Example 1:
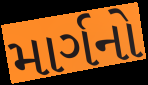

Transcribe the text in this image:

માર્ગનો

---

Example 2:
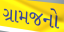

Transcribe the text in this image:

ગ્રામજનો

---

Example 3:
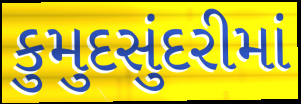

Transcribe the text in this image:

કુમુદસુંદરીમાં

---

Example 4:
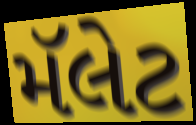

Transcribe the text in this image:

મૅલેટ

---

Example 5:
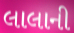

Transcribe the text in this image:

લાલાની